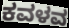
ಕವಳವ